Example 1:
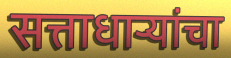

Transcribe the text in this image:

सत्ताधाऱ्यांचा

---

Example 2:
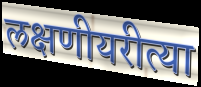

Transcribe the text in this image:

लक्षणीयरीत्या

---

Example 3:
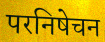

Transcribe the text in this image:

परनिषेचन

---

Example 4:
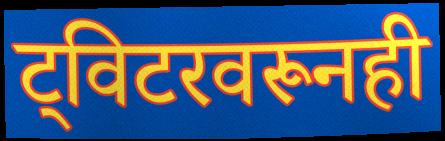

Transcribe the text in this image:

ट्विटरवरूनही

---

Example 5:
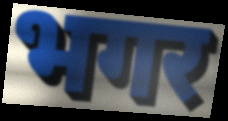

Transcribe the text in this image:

भगर